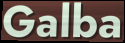
Galba